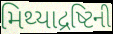
મિથ્યાદ્રષ્ટિની